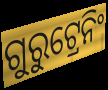
ଗୁରୁଟ୍ରେନିଂ